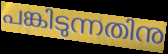
പങ്കിടുന്നതിനു